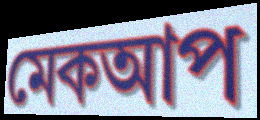
মেকআপ